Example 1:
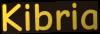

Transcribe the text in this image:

Kibria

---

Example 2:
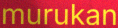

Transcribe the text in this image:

murukan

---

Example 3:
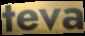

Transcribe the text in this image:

teva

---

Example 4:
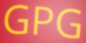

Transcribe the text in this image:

GPG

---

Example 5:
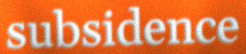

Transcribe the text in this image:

subsidence